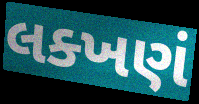
લક્ખણં